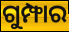
ଗୁମ୍ଫାର